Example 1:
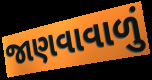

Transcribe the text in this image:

જાણવાવાળું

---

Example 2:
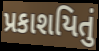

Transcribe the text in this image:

પ્રકાશયિતું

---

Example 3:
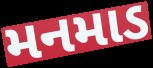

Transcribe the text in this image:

મનમાડ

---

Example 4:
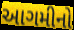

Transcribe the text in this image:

આગમીનો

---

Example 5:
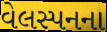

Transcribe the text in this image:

વેલસ્પનના